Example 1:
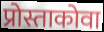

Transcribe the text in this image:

प्रोस्ताकोवा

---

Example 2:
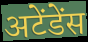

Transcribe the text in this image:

अटेंडेंस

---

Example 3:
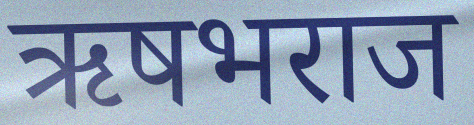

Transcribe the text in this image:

ऋषभराज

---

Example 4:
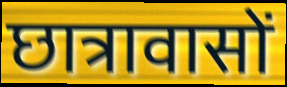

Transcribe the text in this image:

छात्रावासों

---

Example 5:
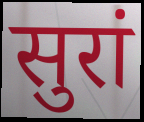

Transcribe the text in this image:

सुरां